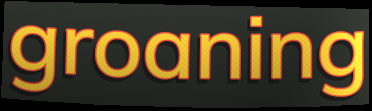
groaning